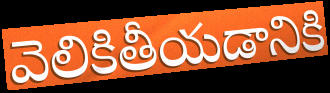
వెలికితీయడానికి